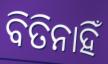
ବିତିନାହିଁ